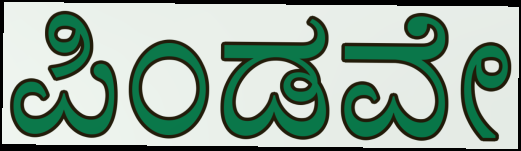
ಪಿಂಡವೇ